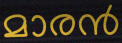
മാരൻ